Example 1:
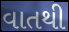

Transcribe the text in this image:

વાતથી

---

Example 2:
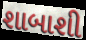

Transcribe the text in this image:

શાબાશી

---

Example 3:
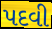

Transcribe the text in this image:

પદવી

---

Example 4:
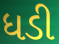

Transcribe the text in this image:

ધડી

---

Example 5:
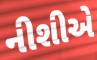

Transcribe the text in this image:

નીશીએ